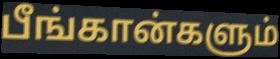
பீங்கான்களும்